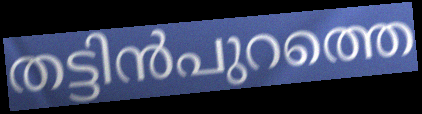
തട്ടിൻപുറത്തെ